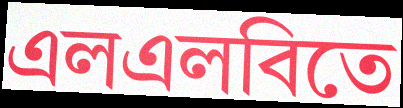
এলএলবিতে